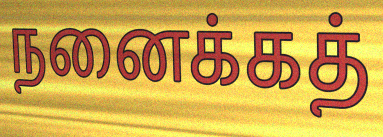
நனைக்கத்